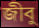
জীবু